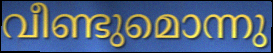
വീണ്ടുമൊന്നു